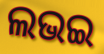
ଲଭଇ